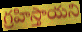
గ్రహిస్తాయని